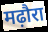
मढ़ौरा